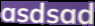
asdsad